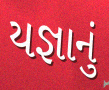
યજ્ઞાનું